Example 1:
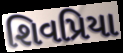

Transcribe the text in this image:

શિવપ્રિયા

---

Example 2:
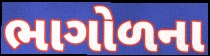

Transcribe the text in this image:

ભાગોળના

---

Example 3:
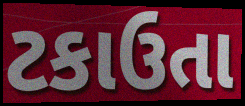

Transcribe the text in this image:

ટકાઉતા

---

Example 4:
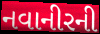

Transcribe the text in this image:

નવાનીરની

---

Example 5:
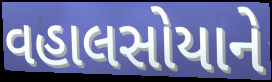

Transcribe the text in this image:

વહાલસોયાને